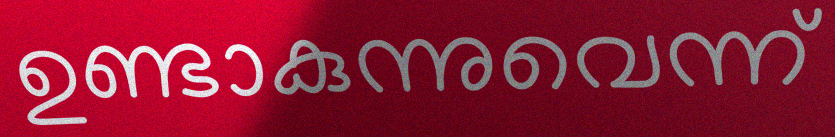
ഉണ്ടാകുന്നുവെന്ന്